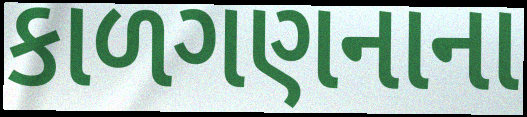
કાળગણનાના